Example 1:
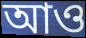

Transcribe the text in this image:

আও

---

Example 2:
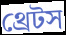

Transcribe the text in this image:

থ্রেটস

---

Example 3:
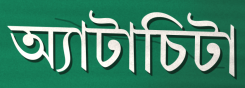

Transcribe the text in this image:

অ্যাটাচিটা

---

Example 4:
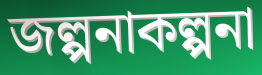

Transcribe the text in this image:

জল্পনাকল্পনা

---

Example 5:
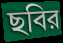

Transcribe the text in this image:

ছবির